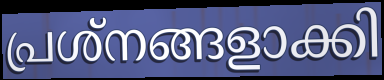
പ്രശ്നങ്ങളാക്കി